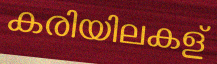
കരിയിലകള്